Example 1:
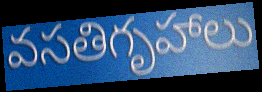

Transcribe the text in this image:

వసతిగృహాలు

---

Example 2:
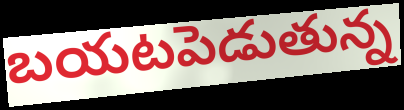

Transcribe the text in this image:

బయటపెడుతున్న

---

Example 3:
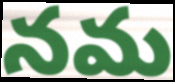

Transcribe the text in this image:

నమ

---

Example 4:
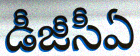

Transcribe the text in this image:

డీజీసీఏ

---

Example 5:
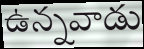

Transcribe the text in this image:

ఉన్నవాడు